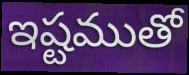
ఇష్టముతో